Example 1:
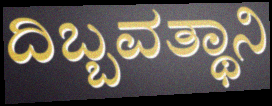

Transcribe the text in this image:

ದಿಬ್ಬವತ್ಥಾನಿ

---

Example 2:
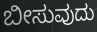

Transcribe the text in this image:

ಬೀಸುವುದು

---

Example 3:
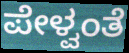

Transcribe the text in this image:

ಪೇಳ್ವಂತೆ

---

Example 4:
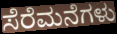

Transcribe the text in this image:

ಸೆರೆಮನೆಗಳು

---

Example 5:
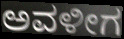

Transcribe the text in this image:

ಅವಳೀಗ